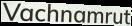
Vachnamrut